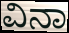
ವಿನಾ